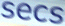
secs